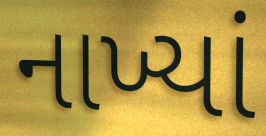
નાખ્યાં